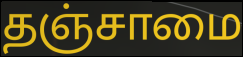
தஞ்சாமை